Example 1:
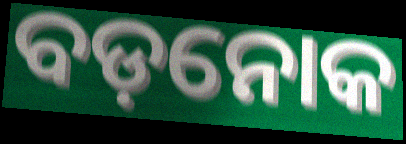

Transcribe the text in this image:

ବଡ଼ନୋକ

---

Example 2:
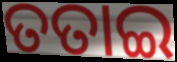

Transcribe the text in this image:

ତତାଇ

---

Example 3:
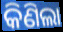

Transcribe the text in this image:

କିଣିଲା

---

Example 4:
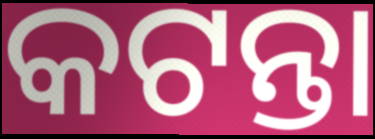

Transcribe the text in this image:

କଟନ୍ତା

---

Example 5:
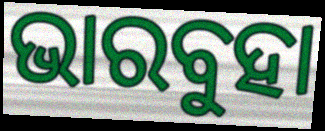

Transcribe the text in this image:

ଭାରବୁହା